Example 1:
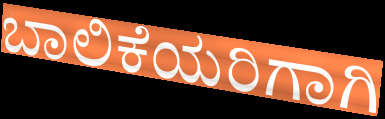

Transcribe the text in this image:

ಬಾಲಿಕೆಯರಿಗಾಗಿ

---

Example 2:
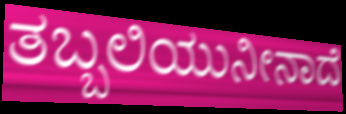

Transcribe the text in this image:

ತಬ್ಬಲಿಯುನೀನಾದೆ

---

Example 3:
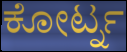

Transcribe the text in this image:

ಕೋರ್ಟ್ನ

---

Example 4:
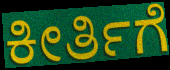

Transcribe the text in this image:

ಕೀರ್ತಿಗೆ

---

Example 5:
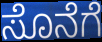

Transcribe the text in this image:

ಸೊನೆಗೆ